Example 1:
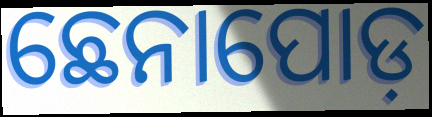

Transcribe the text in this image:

ଛେନାପୋଡ଼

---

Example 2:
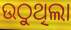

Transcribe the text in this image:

ଉଠୁଥିଲା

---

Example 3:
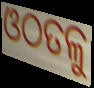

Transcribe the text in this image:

ଓଠତଳୁ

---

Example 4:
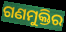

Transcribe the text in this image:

ଗଣମୁକ୍ତିର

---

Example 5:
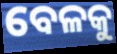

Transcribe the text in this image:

ବେଳକୁ